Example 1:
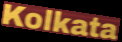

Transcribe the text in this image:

Kolkata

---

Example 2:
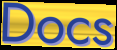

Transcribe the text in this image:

Docs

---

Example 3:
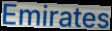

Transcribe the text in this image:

Emirates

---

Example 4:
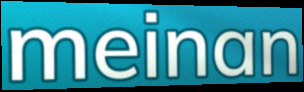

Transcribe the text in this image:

meinan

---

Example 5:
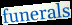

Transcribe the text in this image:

funerals